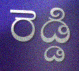
రెడ్డి